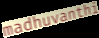
madhuvanthi